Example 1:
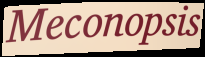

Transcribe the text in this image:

Meconopsis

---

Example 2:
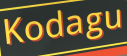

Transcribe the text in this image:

Kodagu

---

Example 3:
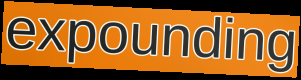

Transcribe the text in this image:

expounding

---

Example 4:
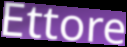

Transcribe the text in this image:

Ettore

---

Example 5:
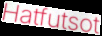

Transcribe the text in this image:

Hatfutsot